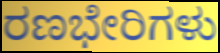
ರಣಭೇರಿಗಳು